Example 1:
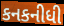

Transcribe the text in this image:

કનકનીધી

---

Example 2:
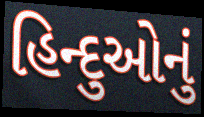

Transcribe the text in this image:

હિન્દુઓનું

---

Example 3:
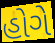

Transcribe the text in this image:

હોગે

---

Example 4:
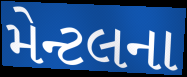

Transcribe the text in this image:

મેન્ટલના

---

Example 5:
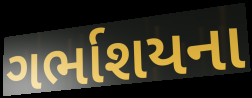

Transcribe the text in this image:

ગર્ભાશયના